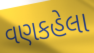
વણકહેલા